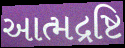
આત્મદ્રષ્ટિ